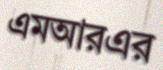
এমআরএর